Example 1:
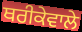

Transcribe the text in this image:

ਥਰੀਕੇਵਾਲੇ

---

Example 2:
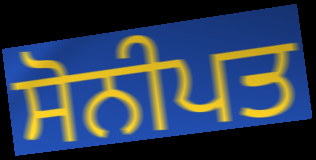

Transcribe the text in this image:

ਸੋਨੀਪਤ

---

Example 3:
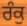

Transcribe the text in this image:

ਰੰਕੁ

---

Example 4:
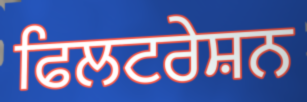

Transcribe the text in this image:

ਫਿਲਟਰੇਸ਼ਨ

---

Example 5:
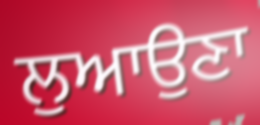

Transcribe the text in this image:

ਲੁਆਉਣਾ